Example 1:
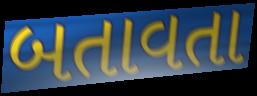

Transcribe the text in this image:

બતાવતા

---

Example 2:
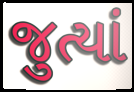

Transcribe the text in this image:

જુત્યાં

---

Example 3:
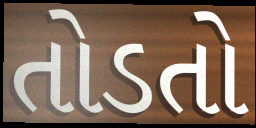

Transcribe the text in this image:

તોડતો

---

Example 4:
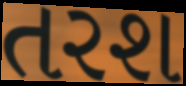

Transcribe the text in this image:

તરશ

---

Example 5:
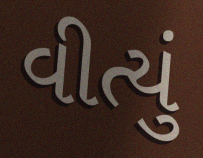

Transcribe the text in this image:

વીત્યું